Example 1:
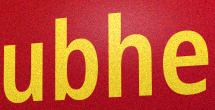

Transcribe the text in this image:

ubhe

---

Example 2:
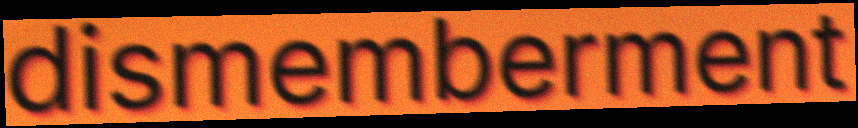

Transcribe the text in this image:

dismemberment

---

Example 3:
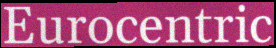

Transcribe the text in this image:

Eurocentric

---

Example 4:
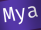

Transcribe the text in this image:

Mya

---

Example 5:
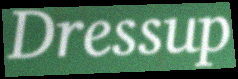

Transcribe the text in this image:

Dressup